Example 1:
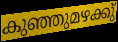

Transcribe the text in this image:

കുഞ്ഞുമഴക്കു്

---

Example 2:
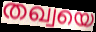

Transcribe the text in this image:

തഖ്വയെ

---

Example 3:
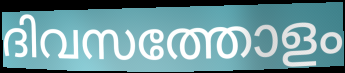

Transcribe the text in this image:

ദിവസത്തോളം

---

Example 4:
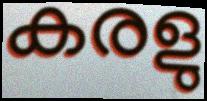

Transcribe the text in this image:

കരളു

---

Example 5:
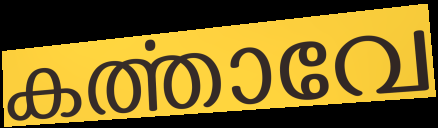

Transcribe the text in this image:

കൎത്താവേ